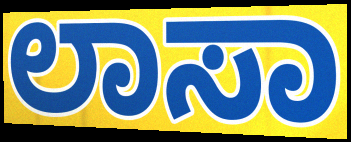
ಲಾಸಾ